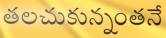
తలచుకున్నంతనే